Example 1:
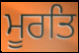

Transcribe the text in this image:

ਮੂਰਤਿ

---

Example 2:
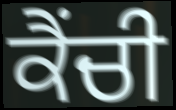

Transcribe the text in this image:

ਕੈਂਚੀ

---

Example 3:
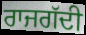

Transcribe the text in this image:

ਰਾਜਗੱਦੀ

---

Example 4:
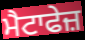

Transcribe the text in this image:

ਮੈਟਾਫੇਜ਼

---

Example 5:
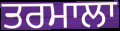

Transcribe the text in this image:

ਤਰਮਾਲਾ